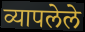
व्यापलेले